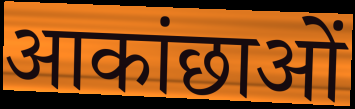
आकांछाओं